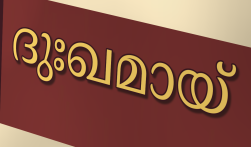
ദുഃഖമായ്